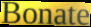
Bonate